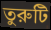
তুরুটি